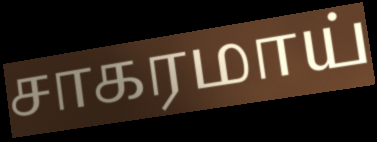
சாகரமாய்